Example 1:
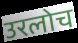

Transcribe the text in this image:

उरलोच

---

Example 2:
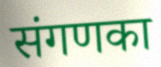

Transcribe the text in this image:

संगणका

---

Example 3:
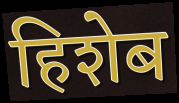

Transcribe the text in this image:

हिशेब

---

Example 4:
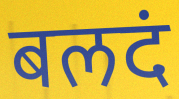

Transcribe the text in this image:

बलदं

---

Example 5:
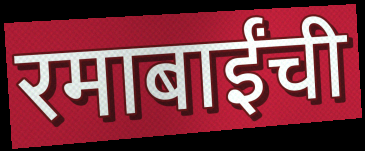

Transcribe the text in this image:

रमाबाईंची